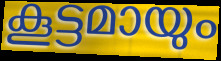
കൂട്ടമായും